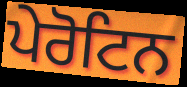
ਪੇਰੋਟਿਨ